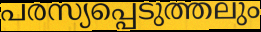
പരസ്യപ്പെടുത്തലും